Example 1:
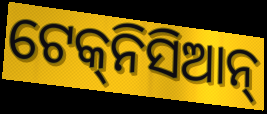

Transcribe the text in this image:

ଟେକ୍‌ନିସିଆନ୍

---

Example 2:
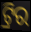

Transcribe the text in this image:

ଟ୍ରିର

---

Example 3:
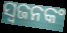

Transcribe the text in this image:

ସ୍ଵଜନକଂ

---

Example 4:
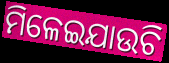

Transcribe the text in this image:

ମିଳେଇଯାଉଚି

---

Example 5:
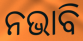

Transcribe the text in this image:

ନଭାବି